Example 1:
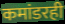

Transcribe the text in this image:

कमांडरही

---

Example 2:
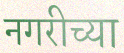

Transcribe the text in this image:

नगरीच्या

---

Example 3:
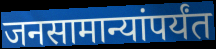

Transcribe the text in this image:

जनसामान्यांपर्यंत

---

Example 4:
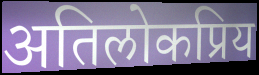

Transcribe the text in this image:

अतिलोकप्रिय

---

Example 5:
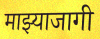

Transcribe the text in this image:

माझ्याजागी